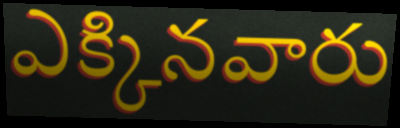
ఎక్కినవారు